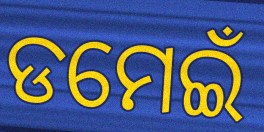
ଡମେଇଁ